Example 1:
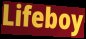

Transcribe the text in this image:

Lifeboy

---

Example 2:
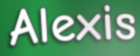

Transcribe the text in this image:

Alexis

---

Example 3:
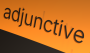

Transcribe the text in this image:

adjunctive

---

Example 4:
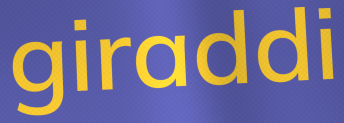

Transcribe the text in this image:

giraddi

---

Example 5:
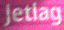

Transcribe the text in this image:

Jetlag